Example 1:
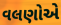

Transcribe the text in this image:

વલણોએ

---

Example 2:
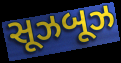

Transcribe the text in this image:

સૂઝબૂઝ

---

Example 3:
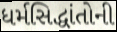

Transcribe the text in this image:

ધર્મસિદ્ધાંતોની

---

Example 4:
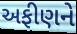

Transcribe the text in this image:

અફીણને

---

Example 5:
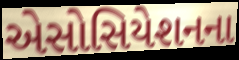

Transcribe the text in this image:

એસોસિયેશનના